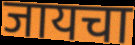
जायचा